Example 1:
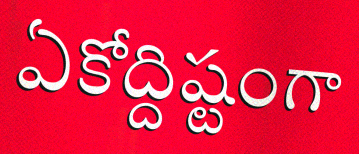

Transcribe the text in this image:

ఏకోద్దిష్టంగా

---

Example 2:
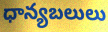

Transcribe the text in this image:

ధాన్యబలులు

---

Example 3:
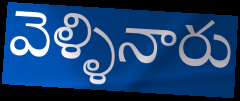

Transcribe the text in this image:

వెళ్ళినారు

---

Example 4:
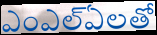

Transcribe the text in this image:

ఎంఎల్ఏలతో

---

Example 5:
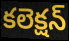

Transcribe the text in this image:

కలెక్షన్